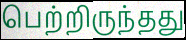
பெற்றிருந்தது